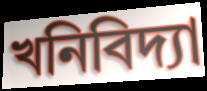
খনিবিদ্যা